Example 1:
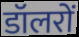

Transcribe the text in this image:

डॉलरों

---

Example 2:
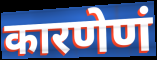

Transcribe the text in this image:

कारणेणं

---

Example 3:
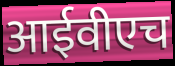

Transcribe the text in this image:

आईवीएच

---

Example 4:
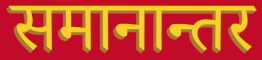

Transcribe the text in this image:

समानान्तर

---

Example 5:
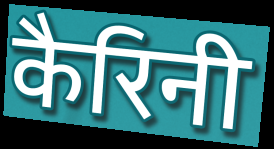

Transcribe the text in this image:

कैरिनी